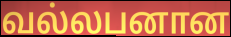
வல்லபனான